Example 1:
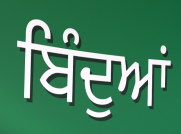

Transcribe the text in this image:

ਬਿੰਦੁਆਂ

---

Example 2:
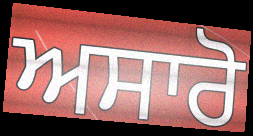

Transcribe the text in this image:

ਅਸਾਰੋ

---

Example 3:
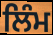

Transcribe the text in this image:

ਲਿੰਮ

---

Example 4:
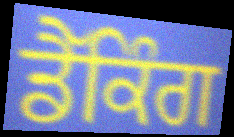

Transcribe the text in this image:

ਡੈੱਕਿੰਗ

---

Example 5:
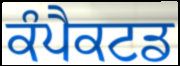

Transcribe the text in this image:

ਕੰਪੈਕਟਡ